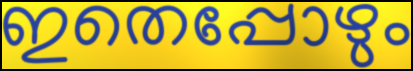
ഇതെപ്പോഴും